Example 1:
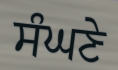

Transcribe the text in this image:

ਸੰਘਣੇ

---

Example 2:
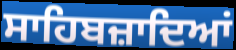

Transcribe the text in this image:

ਸਾਹਿਬਜ਼ਾਦਿਆਂ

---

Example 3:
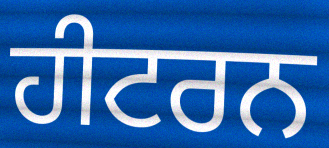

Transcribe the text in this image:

ਹੀਟਰਨ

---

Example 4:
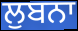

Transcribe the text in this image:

ਲੁਬਨਾ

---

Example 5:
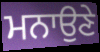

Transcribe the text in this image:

ਮਨਾਉਣੇ